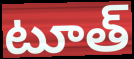
టూత్